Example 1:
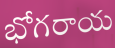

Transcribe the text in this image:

భోగరాయ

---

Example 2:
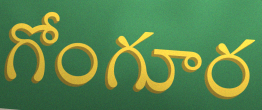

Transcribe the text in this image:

గోంగూర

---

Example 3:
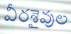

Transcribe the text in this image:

వీరశైవుల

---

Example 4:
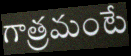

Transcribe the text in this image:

గాత్రమంటే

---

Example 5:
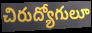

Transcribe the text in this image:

చిరుద్యోగులూ